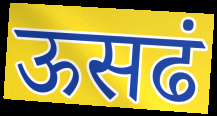
ऊसढं